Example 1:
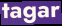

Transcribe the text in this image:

tagar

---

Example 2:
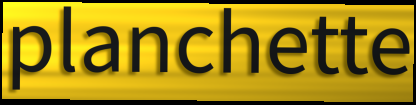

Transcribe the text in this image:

planchette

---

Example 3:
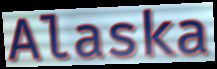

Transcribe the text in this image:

Alaska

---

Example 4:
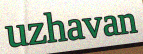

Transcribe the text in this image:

uzhavan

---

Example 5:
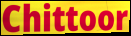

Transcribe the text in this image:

Chittoor